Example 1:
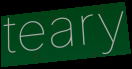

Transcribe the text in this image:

teary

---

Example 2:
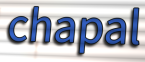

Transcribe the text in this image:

chapal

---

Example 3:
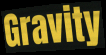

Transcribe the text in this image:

Gravity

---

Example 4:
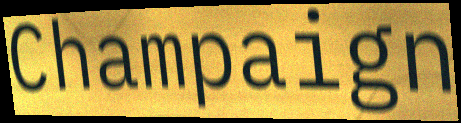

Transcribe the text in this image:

Champaign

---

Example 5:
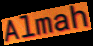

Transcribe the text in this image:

Almah